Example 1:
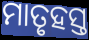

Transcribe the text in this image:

ମାତୃହସ୍ତ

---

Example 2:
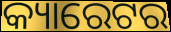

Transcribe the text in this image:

କ୍ୟାରେଟର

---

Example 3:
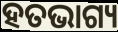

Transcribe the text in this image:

ହତଭାଗ୍ୟ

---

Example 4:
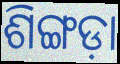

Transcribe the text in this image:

ଶିଙ୍ଗଡ଼ା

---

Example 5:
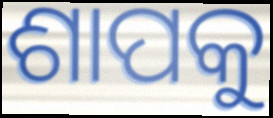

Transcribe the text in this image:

ଶାପକୁ